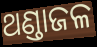
ଥଣ୍ଡାଜଳ